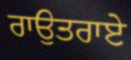
ਰਾਉਤਰਾਏ